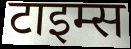
टाइम्स